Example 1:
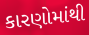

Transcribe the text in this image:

કારણોમાંથી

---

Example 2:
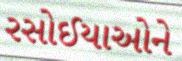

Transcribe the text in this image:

રસોઈયાઓને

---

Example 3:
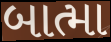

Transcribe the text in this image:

બાત્મા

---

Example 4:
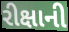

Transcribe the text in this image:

રીક્ષાની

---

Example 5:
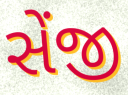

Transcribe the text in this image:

સેંજી